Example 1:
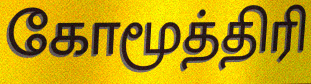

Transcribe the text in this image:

கோமூத்திரி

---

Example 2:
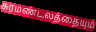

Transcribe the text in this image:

சுரமண்டலத்தையும்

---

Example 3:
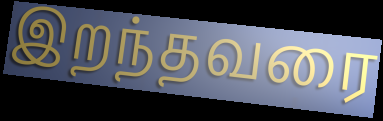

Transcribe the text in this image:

இறந்தவரை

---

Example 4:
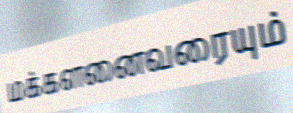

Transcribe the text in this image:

மக்களனைவரையும்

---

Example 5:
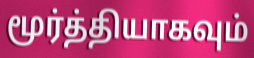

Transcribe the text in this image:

மூர்த்தியாகவும்